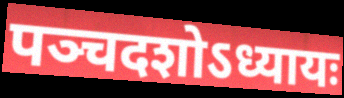
पञ्चदशोऽध्यायः